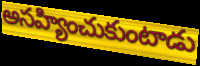
అసహ్యించుకుంటాడు